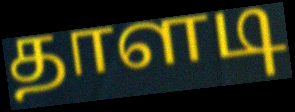
தாளடி